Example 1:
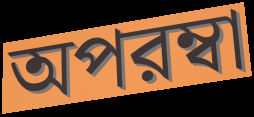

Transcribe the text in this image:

অপরম্বা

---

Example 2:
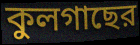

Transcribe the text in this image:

কুলগাছের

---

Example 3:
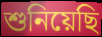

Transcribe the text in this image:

শুনিয়েছি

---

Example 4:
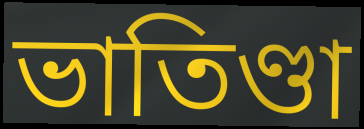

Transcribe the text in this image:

ভাতিণ্ডা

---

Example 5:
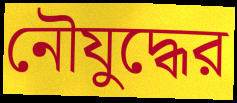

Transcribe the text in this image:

নৌযুদ্ধের